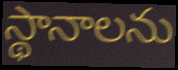
స్థానాలను